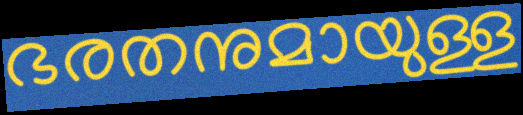
ഭരതനുമായുള്ള